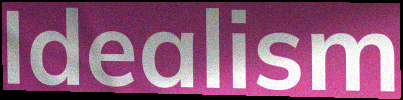
Idealism